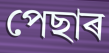
পেছাৰ